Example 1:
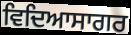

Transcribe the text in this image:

ਵਿਦਿਆਸਾਗਰ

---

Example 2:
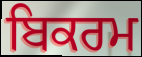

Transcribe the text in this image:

ਬਿਕਰਮ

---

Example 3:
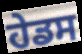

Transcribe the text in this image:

ਹੇਡਸ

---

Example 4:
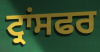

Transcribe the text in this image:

ਟ੍ਰਾਂਸਫਰ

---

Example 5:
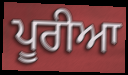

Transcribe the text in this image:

ਪੂਰੀਆ